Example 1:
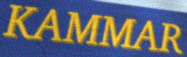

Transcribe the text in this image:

KAMMAR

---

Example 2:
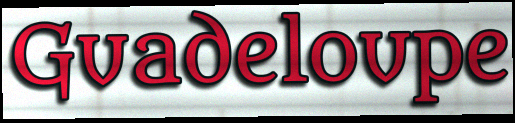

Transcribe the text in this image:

Guadeloupe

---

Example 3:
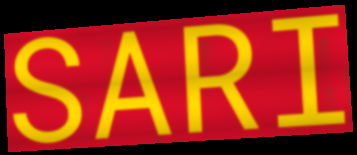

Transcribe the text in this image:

SARI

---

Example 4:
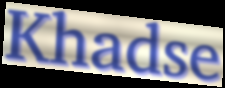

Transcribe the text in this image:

Khadse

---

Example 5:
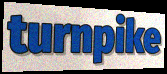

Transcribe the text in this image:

turnpike